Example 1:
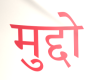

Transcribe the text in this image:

मुद्दो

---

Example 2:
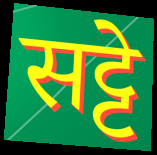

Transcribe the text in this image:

सट्टे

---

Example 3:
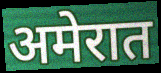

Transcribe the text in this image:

अमेरात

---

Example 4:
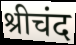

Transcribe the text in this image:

श्रीचंद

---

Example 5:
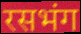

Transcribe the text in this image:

रसभंग